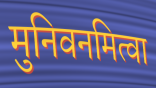
मुनिवनमित्वा